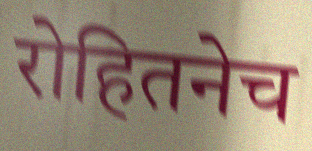
रोहितनेच